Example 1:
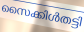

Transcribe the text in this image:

സൈക്കിൾതട്ടി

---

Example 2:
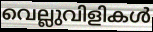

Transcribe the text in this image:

വെല്ലുവിളികൾ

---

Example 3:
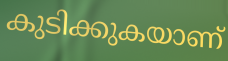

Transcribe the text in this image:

കുടിക്കുകയാണ്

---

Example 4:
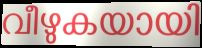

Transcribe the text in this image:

വീഴുകയായി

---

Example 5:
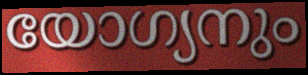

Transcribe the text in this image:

യോഗ്യനും